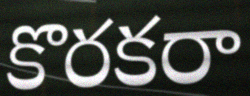
కొరకరా